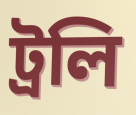
ট্রলি